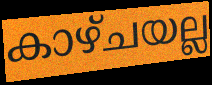
കാഴ്ചയല്ല